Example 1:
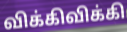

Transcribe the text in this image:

விக்கிவிக்கி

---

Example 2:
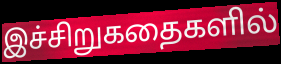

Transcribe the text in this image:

இச்சிறுகதைகளில்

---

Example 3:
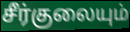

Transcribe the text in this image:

சீர்குலையும்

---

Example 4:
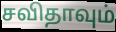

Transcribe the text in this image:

சவிதாவும்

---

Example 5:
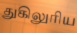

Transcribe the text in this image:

துகிலுரிய